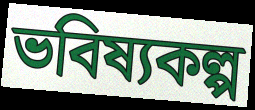
ভবিষ্যকল্প